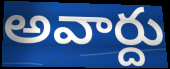
అవార్దు